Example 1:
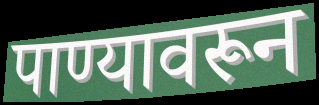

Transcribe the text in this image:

पाण्यावरून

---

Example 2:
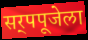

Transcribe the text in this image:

सर्पपूजेला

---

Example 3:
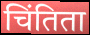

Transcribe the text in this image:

चिंतिता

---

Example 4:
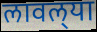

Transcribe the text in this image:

लावल्या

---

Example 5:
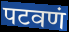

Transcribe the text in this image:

पटवणं